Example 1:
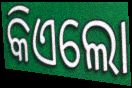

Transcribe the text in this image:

କିଏଲୋ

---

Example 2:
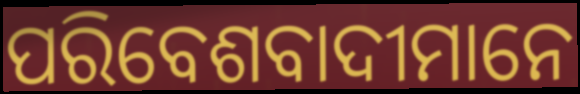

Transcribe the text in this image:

ପରିବେଶବାଦୀମାନେ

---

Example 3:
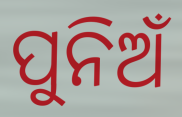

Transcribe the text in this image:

ପୁନିଅଁ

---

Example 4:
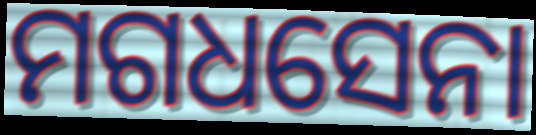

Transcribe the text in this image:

ମଗଧସେନା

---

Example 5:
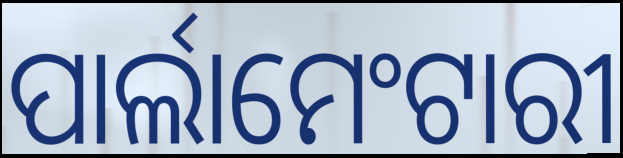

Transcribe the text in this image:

ପାର୍ଲାମେଂଟାରୀ